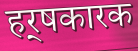
हर्षकारक